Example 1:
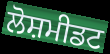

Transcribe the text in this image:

ਲੋਸ਼ਮੀਡਟ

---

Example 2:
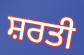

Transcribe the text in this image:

ਸ਼ਰਤੀ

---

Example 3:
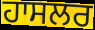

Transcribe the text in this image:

ਹਾਸਲਰ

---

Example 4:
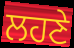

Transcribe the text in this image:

ਲਹਣੇ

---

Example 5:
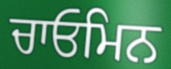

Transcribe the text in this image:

ਚਾਓਮਿਨ